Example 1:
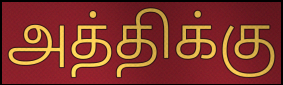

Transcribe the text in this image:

அத்திக்கு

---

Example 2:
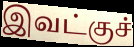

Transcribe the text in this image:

இவட்குச்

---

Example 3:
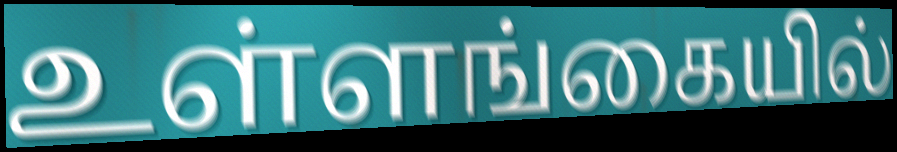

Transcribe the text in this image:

உள்ளங்கையில்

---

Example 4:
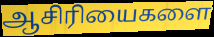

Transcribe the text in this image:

ஆசிரியைகளை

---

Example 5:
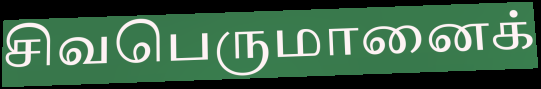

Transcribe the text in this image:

சிவபெருமானைக்